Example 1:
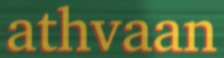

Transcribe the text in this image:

athvaan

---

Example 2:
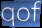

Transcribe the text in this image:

qof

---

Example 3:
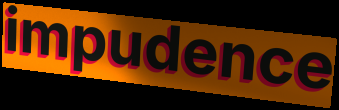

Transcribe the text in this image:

impudence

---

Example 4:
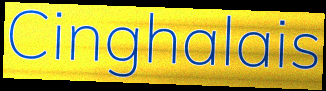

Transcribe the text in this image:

Cinghalais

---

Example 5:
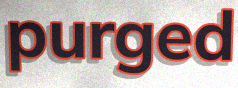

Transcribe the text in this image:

purged